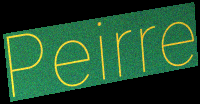
Peirre